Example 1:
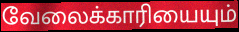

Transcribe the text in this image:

வேலைக்காரியையும்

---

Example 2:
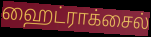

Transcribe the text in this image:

ஹைட்ராக்சைல்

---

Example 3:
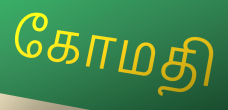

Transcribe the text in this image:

கோமதி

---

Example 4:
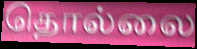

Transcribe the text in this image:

தொல்லை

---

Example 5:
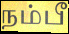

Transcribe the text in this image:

நம்பீ